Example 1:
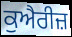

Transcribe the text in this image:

ਕੁਐਰੀਜ਼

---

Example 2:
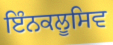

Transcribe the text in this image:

ਇੰਨਕਲੂਸਿਵ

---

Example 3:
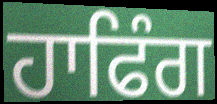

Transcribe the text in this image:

ਹਾਫਿੰਗ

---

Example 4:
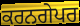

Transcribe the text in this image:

ਕਰਨਗੇਪਰ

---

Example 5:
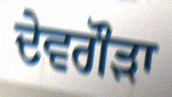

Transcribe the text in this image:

ਦੇਵਗੌੜਾ